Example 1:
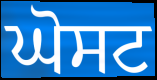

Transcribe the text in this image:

ਘੋਸਟ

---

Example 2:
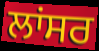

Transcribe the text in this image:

ਲਾਂਸਰ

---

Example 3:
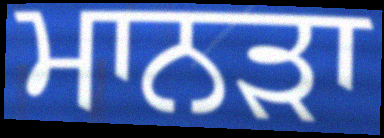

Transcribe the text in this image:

ਮਾਨੜਾ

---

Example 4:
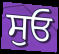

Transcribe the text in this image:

ਸੁਓ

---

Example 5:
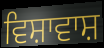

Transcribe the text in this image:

ਵਿਸ਼ਾਵਾਸ਼